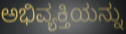
ಅಭಿವ್ಯಕ್ತಿಯನ್ನು